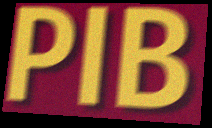
PIB